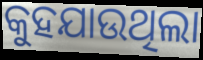
କୁହଯାଉଥିଲା